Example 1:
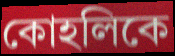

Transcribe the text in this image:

কোহলিকে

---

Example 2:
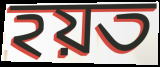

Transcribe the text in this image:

হয়ত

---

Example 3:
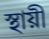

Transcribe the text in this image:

স্থায়ী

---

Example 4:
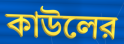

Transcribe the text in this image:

কাউলের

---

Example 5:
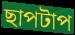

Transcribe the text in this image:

ছাপটাপ